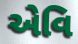
એવિ